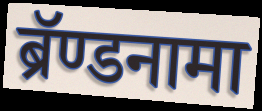
ब्रॅण्डनामा